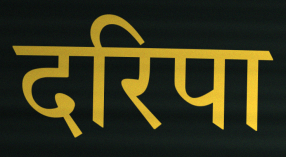
दरिपा